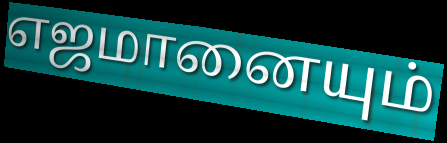
எஜமானையும்